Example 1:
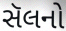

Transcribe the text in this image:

સૅલનો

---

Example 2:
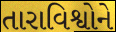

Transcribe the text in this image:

તારાવિશ્વોને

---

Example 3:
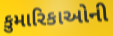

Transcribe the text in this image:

કુમારિકાઓની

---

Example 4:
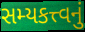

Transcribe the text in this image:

સમ્યકત્ત્વનું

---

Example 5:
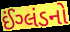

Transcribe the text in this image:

ઈંગ્લંડનો